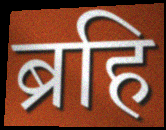
ब्रहि